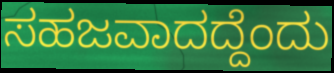
ಸಹಜವಾದದ್ದೆಂದು